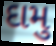
દામુ